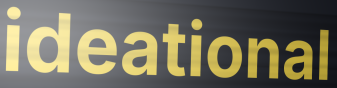
ideational